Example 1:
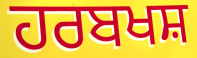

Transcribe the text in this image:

ਹਰਬਖਸ਼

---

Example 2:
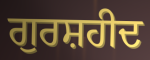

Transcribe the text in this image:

ਗੁਰਸ਼ਹੀਦ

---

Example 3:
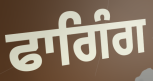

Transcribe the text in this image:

ਫਾਗਿੰਗ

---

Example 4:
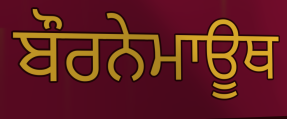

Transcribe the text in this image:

ਬੌਰਨੇਮਾਊਥ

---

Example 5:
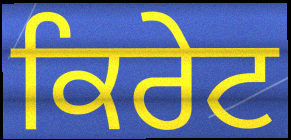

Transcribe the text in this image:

ਕਿਰੇਟ